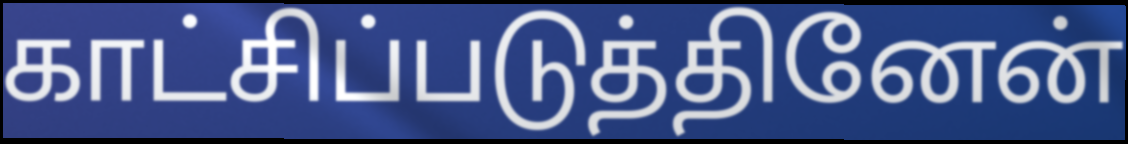
காட்சிப்படுத்தினேன்